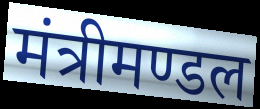
मंत्रीमण्डल